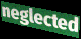
neglected